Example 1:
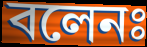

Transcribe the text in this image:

বলেনঃ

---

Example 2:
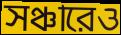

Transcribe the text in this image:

সঞ্চারেও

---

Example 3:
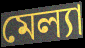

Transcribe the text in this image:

মেল্যা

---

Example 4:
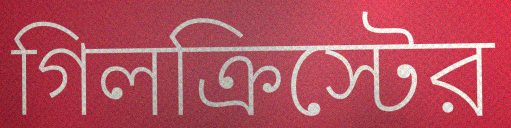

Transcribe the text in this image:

গিলক্রিস্টের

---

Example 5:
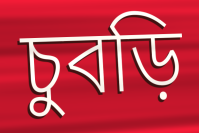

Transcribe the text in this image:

চুবড়ি